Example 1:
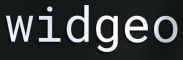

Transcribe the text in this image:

widgeo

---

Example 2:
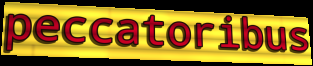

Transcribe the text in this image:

peccatoribus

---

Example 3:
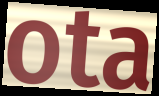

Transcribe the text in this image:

ota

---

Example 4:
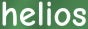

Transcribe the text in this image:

helios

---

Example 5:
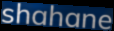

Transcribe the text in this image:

shahane